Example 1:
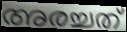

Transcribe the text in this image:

അരച്ചത്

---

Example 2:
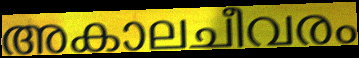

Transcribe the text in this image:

അകാലചീവരം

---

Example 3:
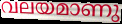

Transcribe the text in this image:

വലയമാണു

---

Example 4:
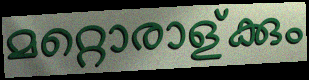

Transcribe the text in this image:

മറ്റൊരാള്ക്കും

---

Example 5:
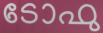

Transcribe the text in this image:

ടോഫു